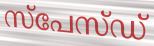
സ്പേസ്ഡ്